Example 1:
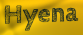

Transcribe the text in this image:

Hyena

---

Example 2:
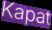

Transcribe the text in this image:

Kapat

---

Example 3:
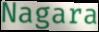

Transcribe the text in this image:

Nagara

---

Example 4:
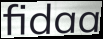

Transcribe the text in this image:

fidaa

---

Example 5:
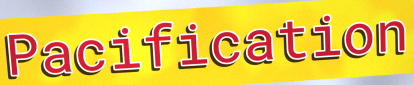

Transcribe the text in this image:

Pacification